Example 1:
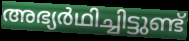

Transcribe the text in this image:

അഭ്യർഥിച്ചിട്ടുണ്ട്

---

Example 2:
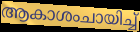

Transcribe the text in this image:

ആകാശംചായിച്ച്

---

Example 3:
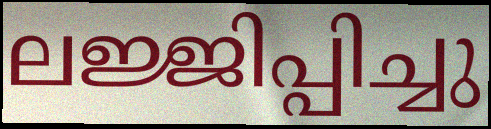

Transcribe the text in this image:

ലജ്ജിപ്പിച്ചു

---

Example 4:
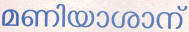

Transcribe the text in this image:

മണിയാശാന്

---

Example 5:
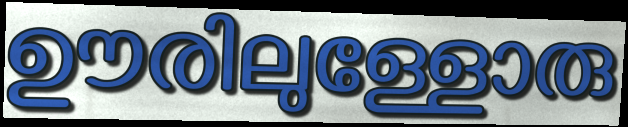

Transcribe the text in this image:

ഊരിലുള്ളോരു